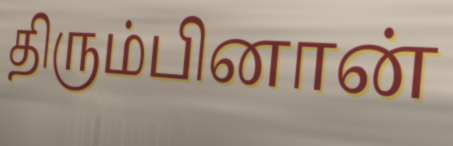
திரும்பினான்